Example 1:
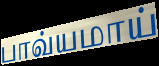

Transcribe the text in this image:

பாவ்யமாய்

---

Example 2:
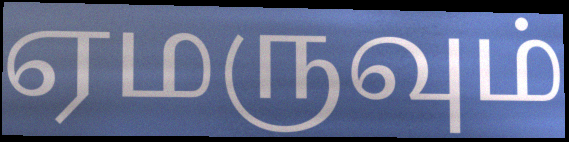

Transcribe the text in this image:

ஏமருவும்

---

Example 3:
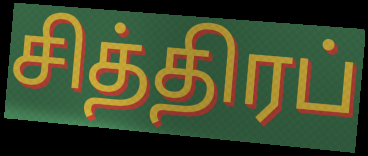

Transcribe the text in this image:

சித்திரப்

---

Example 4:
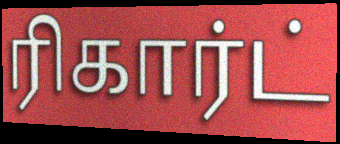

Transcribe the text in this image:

ரிகார்ட்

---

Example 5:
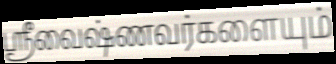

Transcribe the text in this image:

ஸ்ரீவைஷ்ணவர்களையும்